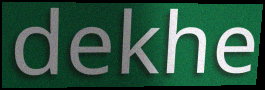
dekhe